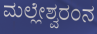
ಮಲ್ಲೇಶ್ವರಂನ